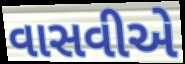
વાસવીએ